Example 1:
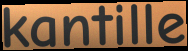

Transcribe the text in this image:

kantille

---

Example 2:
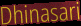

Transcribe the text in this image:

Dhinasari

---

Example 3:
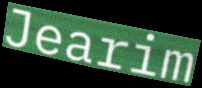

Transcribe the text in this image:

Jearim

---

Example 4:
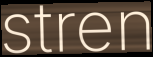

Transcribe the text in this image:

stren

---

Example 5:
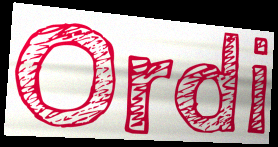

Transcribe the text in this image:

Ordi